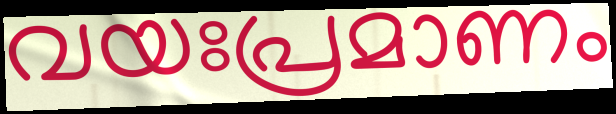
വയഃപ്രമാണം